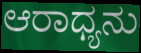
ಆರಾಧ್ಯನು